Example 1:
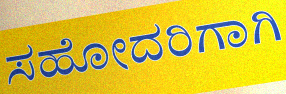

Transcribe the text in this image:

ಸಹೋದರಿಗಾಗಿ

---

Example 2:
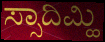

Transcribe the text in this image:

ಸ್ಸಾದಿಮ್ಹಿ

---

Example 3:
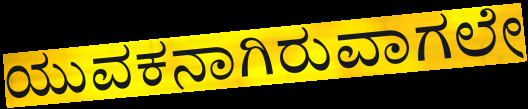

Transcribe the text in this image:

ಯುವಕನಾಗಿರುವಾಗಲೇ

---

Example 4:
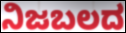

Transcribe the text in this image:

ನಿಜಬಲದ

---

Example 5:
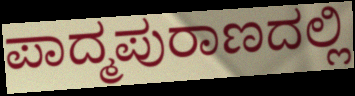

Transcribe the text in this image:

ಪಾದ್ಮಪುರಾಣದಲ್ಲಿ